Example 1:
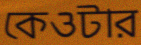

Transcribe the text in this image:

কেওটার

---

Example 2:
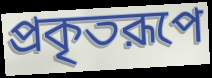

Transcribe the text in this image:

প্রকৃতরূপে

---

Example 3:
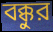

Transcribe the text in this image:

বক্কুর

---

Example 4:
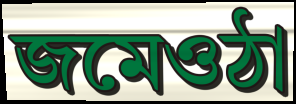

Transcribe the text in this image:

জমেওঠা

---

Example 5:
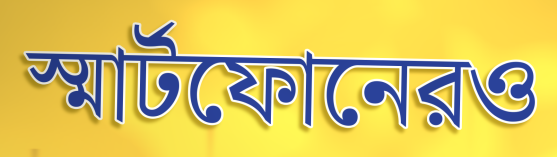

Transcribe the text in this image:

স্মার্টফোনেরও